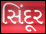
સિંદૂર